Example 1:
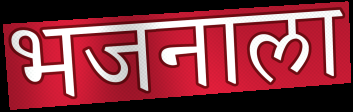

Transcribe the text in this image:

भजनाला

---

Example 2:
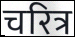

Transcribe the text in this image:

चरित्र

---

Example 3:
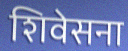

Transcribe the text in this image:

शिवेसना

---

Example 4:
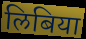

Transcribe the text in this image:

लिबिया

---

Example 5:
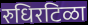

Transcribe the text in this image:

रुधिरटिळा